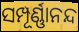
ସମ୍ପୂର୍ଣ୍ଣାନନ୍ଦ